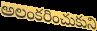
అలంకరించుకుని